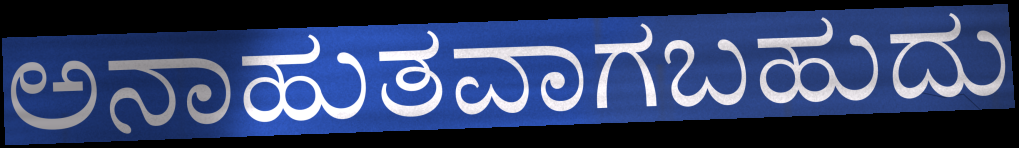
ಅನಾಹುತವಾಗಬಹುದು